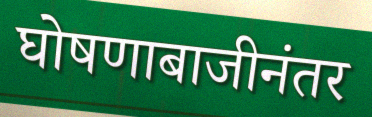
घोषणाबाजीनंतर